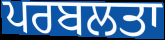
ਪਰਬਲਤਾ